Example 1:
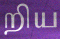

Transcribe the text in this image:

றிய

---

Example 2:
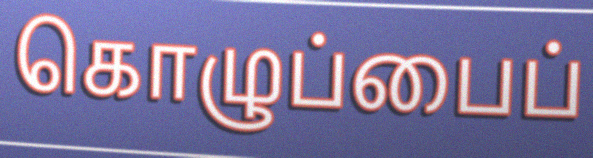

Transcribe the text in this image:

கொழுப்பைப்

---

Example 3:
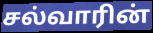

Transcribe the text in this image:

சல்வாரின்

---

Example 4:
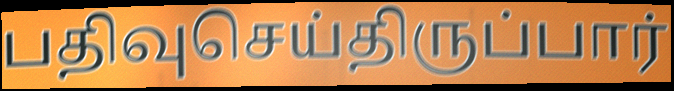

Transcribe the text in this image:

பதிவுசெய்திருப்பார்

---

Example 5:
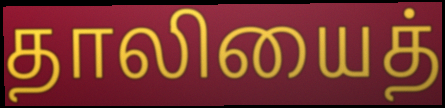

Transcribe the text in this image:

தாலியைத்